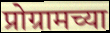
प्रोग्रामच्या